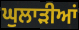
ਘੁਲਾੜੀਆਂ